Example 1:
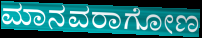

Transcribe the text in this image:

ಮಾನವರಾಗೋಣ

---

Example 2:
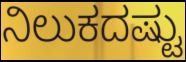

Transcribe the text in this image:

ನಿಲುಕದಷ್ಟು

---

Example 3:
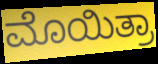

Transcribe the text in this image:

ಮೊಯಿತ್ರಾ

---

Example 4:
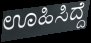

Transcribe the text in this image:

ಊಹಿಸಿದ್ದೆ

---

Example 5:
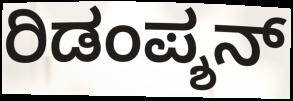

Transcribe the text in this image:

ರಿಡಂಪ್ಶನ್